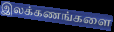
இலக்கணங்களை